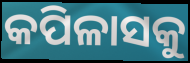
କପିଳାସକୁ